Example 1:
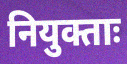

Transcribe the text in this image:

नियुक्ताः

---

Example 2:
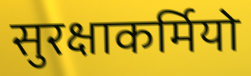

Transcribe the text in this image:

सुरक्षाकर्मियो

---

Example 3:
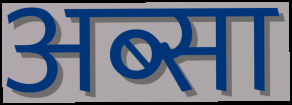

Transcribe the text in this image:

अब्सा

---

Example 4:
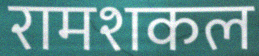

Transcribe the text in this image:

रामशकल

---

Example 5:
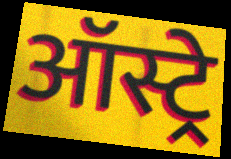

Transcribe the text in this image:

ऑस्ट्रे